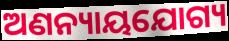
ଅଣନ୍ୟାୟଯୋଗ୍ୟ